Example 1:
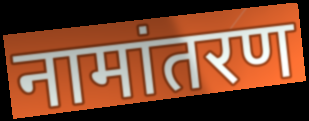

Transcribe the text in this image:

नामांतरण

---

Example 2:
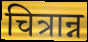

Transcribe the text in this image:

चित्रान्न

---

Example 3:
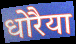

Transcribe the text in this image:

धोरैया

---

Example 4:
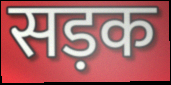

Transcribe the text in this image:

सड़क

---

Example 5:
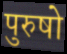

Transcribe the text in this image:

पुरुषो